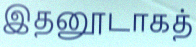
இதனூடாகத்